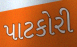
પાટકોરી